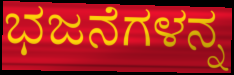
ಭಜನೆಗಳನ್ನ